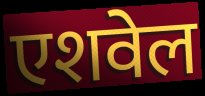
एशवेल